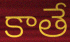
కాతే